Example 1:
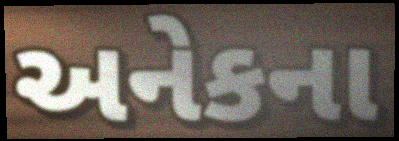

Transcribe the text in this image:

અનેકના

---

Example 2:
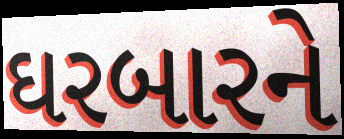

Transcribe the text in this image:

ઘરબારને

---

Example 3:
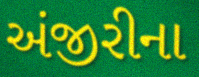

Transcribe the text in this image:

અંજીરીના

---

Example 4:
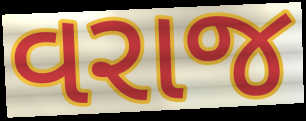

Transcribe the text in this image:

વરાજ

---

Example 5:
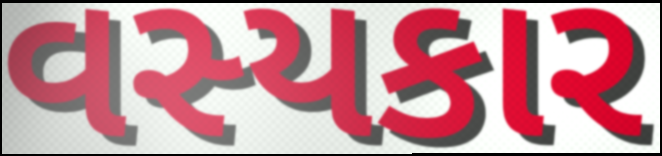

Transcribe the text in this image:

વસ્યકાર